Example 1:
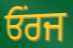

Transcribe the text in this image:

ਓਂਰਜ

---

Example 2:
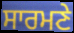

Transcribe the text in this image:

ਸਾਰਮਣੇ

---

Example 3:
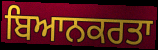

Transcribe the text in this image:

ਬਿਆਨਕਰਤਾ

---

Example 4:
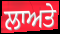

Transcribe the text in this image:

ਲਾਅਤੇ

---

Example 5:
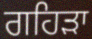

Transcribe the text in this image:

ਗਹਿੜਾ